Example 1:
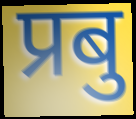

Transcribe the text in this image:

प्रबु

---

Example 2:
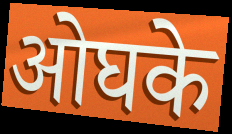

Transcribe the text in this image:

ओघके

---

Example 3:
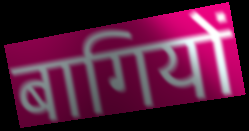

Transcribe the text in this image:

बागियों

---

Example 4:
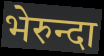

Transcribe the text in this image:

भेरुन्दा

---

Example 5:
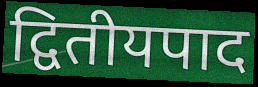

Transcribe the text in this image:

द्वितीयपाद